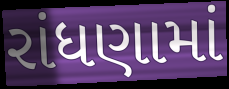
રાંધણામાં